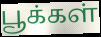
பூக்கள்